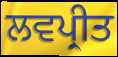
ਲਵਪ੍ਰੀਤ